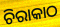
ଚିରାକାଠ